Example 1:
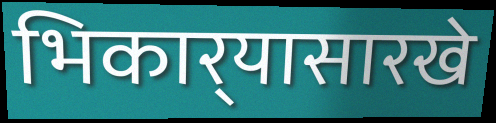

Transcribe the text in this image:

भिकार्‍यासारखे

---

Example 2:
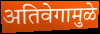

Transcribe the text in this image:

अतिवेगामुळे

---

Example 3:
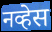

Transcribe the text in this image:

नव्हेस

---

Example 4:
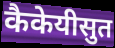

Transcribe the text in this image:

कैकेयीसुत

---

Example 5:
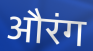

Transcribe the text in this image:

औरंग